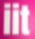
iit